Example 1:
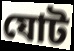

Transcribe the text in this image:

যোট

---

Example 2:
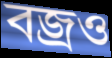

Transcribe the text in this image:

বজ্রও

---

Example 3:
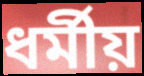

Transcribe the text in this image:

ধর্মীয়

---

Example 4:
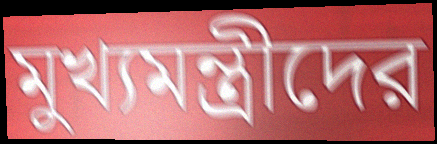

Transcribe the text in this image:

মুখ্যমন্ত্রীদের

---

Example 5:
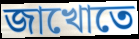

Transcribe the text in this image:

জাখোতে